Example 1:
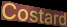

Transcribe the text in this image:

Costard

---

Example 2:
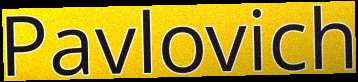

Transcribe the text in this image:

Pavlovich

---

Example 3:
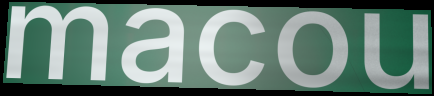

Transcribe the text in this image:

macou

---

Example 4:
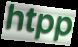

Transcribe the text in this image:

htpp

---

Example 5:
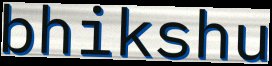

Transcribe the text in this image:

bhikshu